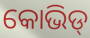
କୋଭିଡ୍